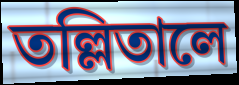
তল্লিতালে